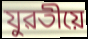
যুৱতীয়ে